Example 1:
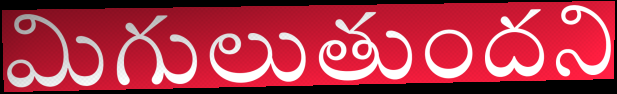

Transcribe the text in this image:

మిగులుతుందని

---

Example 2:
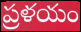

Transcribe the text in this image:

ప్రళయం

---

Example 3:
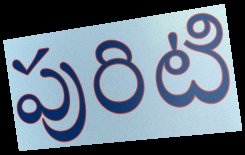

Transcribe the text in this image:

పురిటి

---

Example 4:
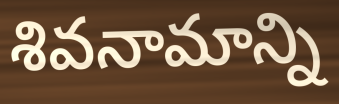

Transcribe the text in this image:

శివనామాన్ని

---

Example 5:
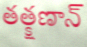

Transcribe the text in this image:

తత్క్షణాన్